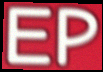
EP